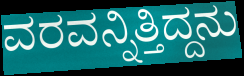
ವರವನ್ನಿತ್ತಿದ್ದನು